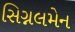
સિગ્નલમેન